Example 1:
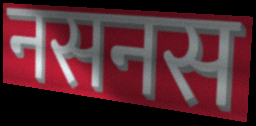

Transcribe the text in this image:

नसनस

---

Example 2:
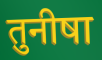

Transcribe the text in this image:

तुनीषा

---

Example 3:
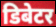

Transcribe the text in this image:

डिबेटर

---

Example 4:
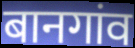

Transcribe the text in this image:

बानगांव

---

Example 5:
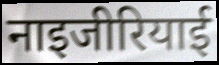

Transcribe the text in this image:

नाइजीरियाई